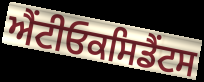
ਐਂਟੀਓਕਸਿਡੈਂਟਸ